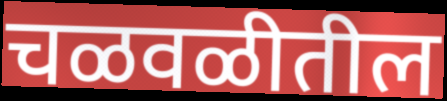
चळवळीतील